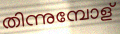
തിന്നുമ്പോള്